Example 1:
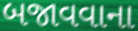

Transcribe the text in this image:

બજાવવાના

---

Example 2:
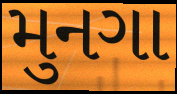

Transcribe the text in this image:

મુનગા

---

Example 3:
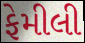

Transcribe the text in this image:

ફેમીલી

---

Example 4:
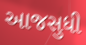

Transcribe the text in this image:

આજસુધી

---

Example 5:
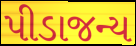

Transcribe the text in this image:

પીડાજન્ય